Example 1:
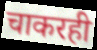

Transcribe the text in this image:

चाकरही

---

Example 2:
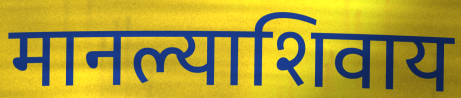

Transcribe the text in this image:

मानल्याशिवाय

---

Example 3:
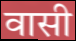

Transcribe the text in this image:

वासी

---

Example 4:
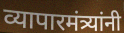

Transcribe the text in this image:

व्यापारमंत्र्यांनी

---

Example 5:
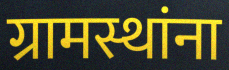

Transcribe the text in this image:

ग्रामस्थांना